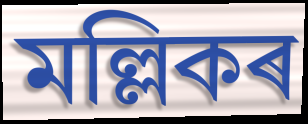
মল্লিকৰ